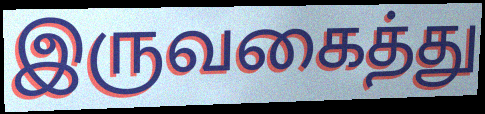
இருவகைத்து